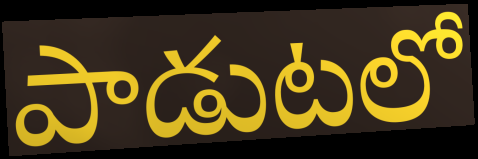
పాడుటలో